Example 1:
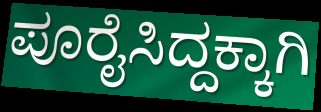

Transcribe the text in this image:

ಪೂರೈಸಿದ್ದಕ್ಕಾಗಿ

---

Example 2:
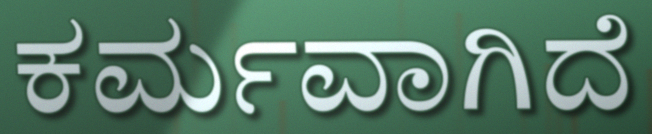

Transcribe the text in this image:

ಕರ್ಮವಾಗಿದೆ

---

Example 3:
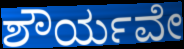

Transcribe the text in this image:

ಶೌರ್ಯವೇ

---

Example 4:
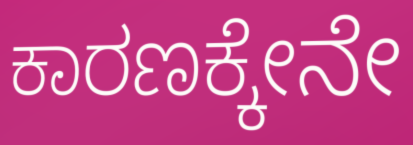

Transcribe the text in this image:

ಕಾರಣಕ್ಕೇನೇ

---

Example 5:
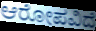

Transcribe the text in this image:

ಆರೋಪವಿದೆ